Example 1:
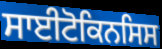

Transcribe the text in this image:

ਸਾਈਟੋਕਿਨਸਿਸ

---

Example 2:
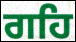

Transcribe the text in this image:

ਗਹਿ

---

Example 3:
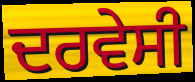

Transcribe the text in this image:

ਦਰਵੇਸੀ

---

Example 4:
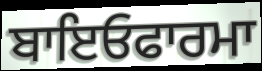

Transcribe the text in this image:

ਬਾਇਓਫਾਰਮਾ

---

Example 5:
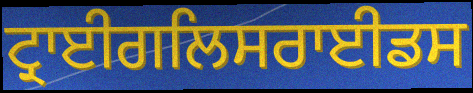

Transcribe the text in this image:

ਟ੍ਰਾਈਗਲਿਸਰਾਈਡਸ